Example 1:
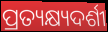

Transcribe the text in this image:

ପ୍ରତ୍ୟକ୍ଷ୍ୟଦର୍ଶୀ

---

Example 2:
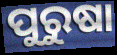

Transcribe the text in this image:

ପୁରୁଷା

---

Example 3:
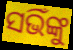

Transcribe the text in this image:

ସଭିଁଙ୍କୁ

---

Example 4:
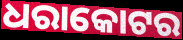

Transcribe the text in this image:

ଧରାକୋଟର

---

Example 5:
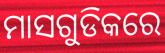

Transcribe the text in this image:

ମାସଗୁଡିକରେ